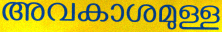
അവകാശമുള്ള